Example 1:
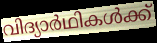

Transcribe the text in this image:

വിദ്യാർഥികൾക്ക്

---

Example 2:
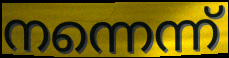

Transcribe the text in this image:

നന്നെന്ന്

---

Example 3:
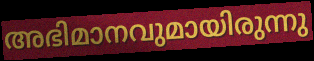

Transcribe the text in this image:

അഭിമാനവുമായിരുന്നു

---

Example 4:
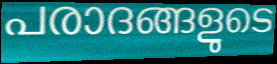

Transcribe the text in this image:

പരാദങ്ങളുടെ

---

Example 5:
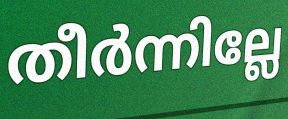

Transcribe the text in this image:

തീർന്നില്ലേ